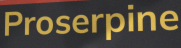
Proserpine